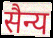
सैन्य